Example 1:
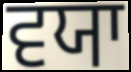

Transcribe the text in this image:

ਵਯਾ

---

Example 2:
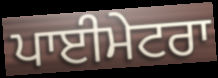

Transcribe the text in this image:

ਪਾਈਮੇਟਰਾ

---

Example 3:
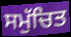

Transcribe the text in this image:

ਸਮੁੱਚਿਤ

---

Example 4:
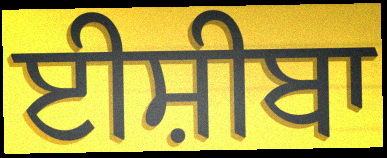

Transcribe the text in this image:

ਈਸ਼ੀਬਾ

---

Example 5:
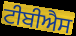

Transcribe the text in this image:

ਟੀਬੀਐਸ